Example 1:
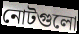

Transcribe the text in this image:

নোটগুলো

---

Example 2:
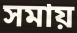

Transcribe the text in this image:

সমায়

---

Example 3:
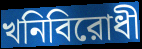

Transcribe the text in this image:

খনিবিরোধী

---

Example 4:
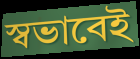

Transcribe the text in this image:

স্বভাবেই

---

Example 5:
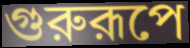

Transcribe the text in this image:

গুরুরূপে